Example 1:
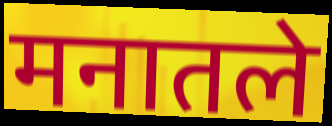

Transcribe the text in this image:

मनातले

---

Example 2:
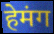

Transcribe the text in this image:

हेमंग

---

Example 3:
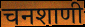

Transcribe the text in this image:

चनशाणी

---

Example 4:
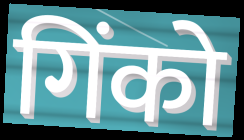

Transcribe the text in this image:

गिंको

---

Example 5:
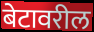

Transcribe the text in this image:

बेटावरील